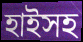
হাইসহ